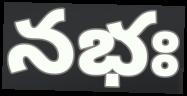
నభః